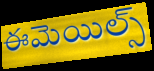
ఈమెయిల్స్